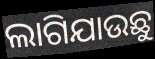
ଲାଗିଯାଉଛୁ